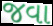
જવા